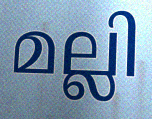
മല്ലി